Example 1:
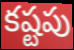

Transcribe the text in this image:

కష్టపు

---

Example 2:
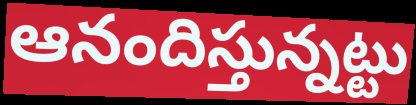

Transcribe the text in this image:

ఆనందిస్తున్నట్టు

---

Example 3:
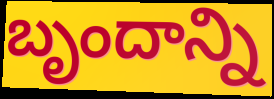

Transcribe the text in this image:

బృందాన్ని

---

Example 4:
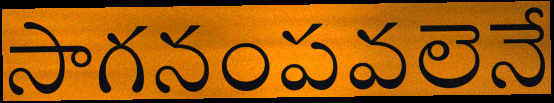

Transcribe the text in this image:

సాగనంపవలెనే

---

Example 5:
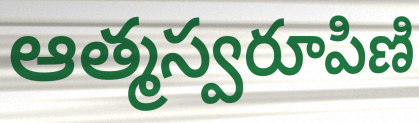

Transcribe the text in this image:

ఆత్మస్వరూపిణి